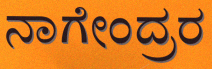
ನಾಗೇಂದ್ರರ